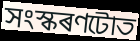
সংস্কৰণটোত